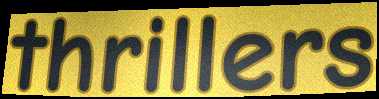
thrillers